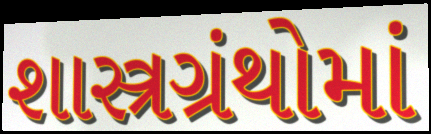
શાસ્ત્રગ્રંથોમાં